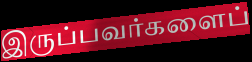
இருப்பவர்களைப்